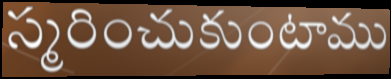
స్మరించుకుంటాము